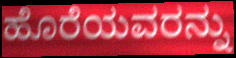
ಹೊರೆಯವರನ್ನು